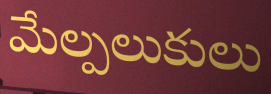
మేల్పలుకులు